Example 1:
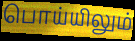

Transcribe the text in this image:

பொய்யிலும்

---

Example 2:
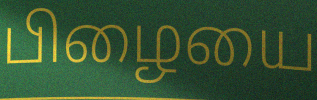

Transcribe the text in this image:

பிழையை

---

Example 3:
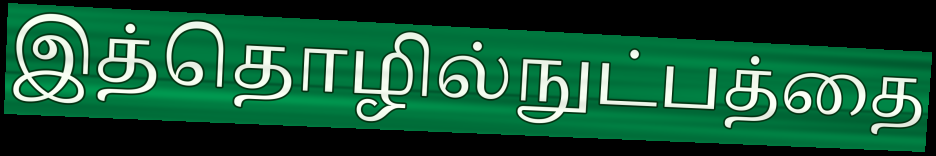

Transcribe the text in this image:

இத்தொழில்நுட்பத்தை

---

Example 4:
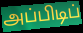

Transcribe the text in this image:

அப்பிடிப்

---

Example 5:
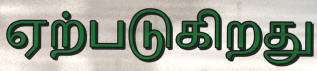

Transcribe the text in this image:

ஏற்படுகிறது